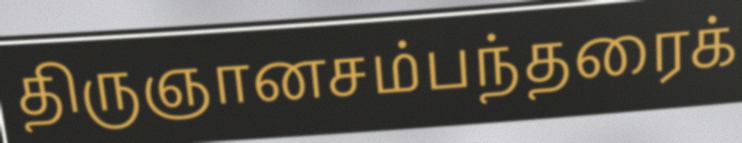
திருஞானசம்பந்தரைக்